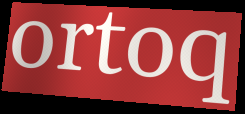
ortoq